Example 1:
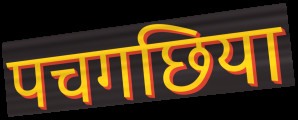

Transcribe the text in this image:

पचगछिया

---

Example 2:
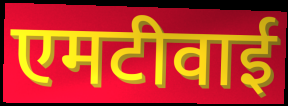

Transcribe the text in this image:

एमटीवाई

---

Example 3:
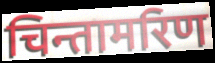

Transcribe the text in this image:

चिन्तामरिण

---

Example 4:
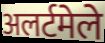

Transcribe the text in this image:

अलर्टमेले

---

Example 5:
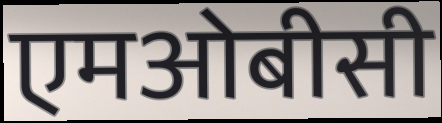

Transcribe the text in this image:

एमओबीसी